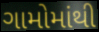
ગામોમાંથી